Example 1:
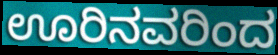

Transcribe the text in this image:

ಊರಿನವರಿಂದ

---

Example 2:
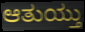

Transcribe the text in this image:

ಆತುಯ್ತು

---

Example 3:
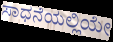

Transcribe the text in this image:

ಸಾಧನೆಯಲ್ಲಿಯೇ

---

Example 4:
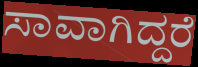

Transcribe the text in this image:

ಸಾವಾಗಿದ್ದರೆ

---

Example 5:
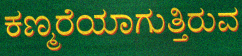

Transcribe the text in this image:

ಕಣ್ಮರೆಯಾಗುತ್ತಿರುವ